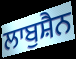
ਲਾਬੁਸ਼ੈਨ